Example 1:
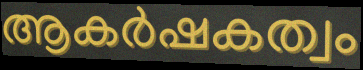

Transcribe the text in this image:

ആകർഷകത്വം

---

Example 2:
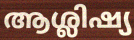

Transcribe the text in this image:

ആശ്ലിഷ്യ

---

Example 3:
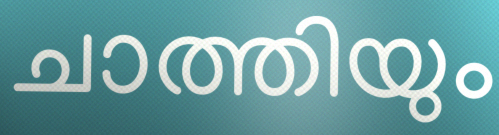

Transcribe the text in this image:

ചാത്തിയും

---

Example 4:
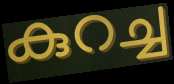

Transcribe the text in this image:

കുറച്ച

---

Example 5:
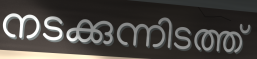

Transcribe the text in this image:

നടക്കുന്നിടത്ത്